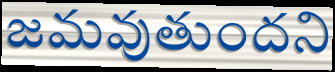
జమవుతుందని